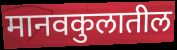
मानवकुलातील